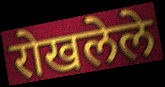
रोखलेले